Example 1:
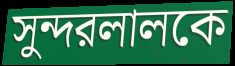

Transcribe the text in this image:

সুন্দরলালকে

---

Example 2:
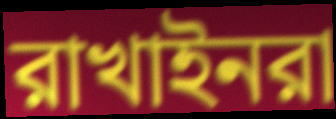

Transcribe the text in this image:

রাখাইনরা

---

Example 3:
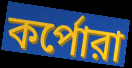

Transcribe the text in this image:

কর্পোরা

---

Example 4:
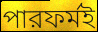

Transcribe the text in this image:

পারফর্মই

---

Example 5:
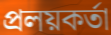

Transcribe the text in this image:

প্রলয়কর্তা